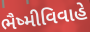
ભૈષ્મીવિવાહે